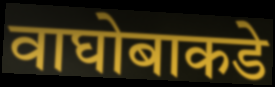
वाघोबाकडे